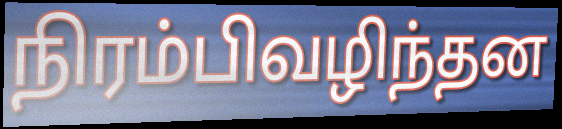
நிரம்பிவழிந்தன